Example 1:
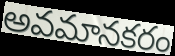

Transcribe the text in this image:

అవమానకరం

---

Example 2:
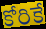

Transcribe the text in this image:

కోరికే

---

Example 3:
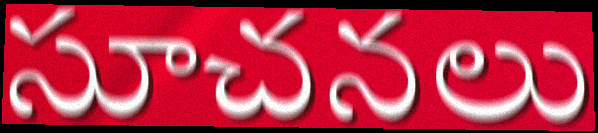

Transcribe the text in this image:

సూచనలు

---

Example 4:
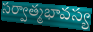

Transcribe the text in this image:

సర్వాత్మభావస్య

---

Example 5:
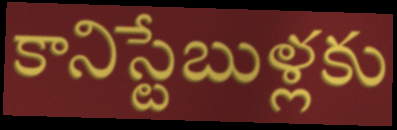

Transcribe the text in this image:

కానిస్టేబుళ్లకు